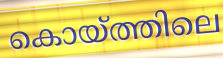
കൊയ്ത്തിലെ